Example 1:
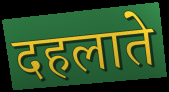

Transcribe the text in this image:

दहलाते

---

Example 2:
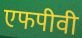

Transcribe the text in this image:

एफपीवी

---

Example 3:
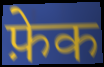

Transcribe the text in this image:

फ़ेक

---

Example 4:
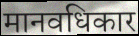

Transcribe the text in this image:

मानवधिकार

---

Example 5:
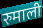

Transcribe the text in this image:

रुमाली